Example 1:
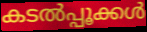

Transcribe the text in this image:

കടൽപ്പൂക്കൾ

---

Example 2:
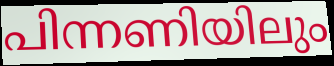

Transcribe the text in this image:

പിന്നണിയിലും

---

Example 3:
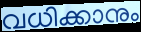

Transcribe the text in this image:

വധിക്കാനും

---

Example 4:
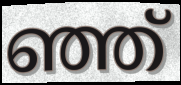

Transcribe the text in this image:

ഞ്ഞ്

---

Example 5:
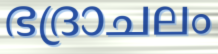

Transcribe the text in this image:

ഭദ്രാചലം